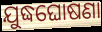
ଯୁଦ୍ଧଘୋଷଣା